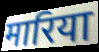
मारिया